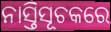
ନାସ୍ତିସୂଚକରେ